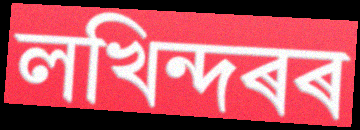
লখিন্দৰৰ